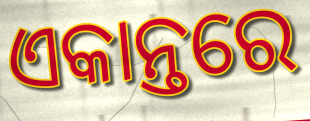
ଏକାନ୍ତରେ